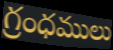
గ్రంధములు